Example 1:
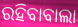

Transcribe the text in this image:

ରହିବାବାଲା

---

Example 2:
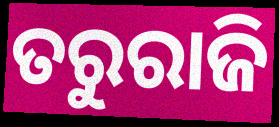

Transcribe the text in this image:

ତରୁରାଜି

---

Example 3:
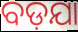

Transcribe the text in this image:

ବଡ଼ଯା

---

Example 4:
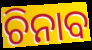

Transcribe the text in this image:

ଚିନାବ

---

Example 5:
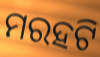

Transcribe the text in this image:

ମରହଟି